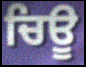
ਚਿਊ